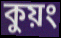
কুয়ং